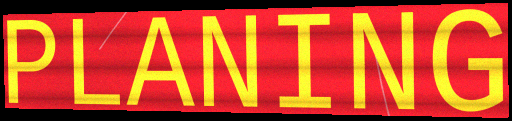
PLANING